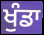
ਖੁੰਡਾ